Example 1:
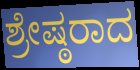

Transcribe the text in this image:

ಶ್ರೇಷ್ಠರಾದ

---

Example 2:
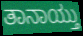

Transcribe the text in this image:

ತಾನಾಯ್ತು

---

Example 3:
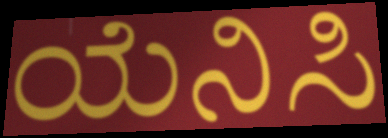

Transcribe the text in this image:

ಯೆನಿಸಿ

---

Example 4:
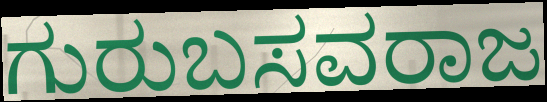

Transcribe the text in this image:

ಗುರುಬಸವರಾಜ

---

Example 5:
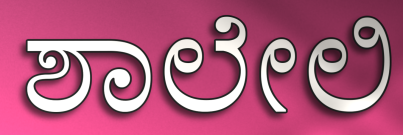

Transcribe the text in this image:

ಶಾಲೇಲಿ